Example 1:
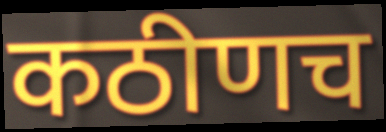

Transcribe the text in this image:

कठीणच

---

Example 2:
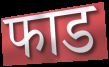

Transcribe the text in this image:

फाड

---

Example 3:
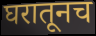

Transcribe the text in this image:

घरातूनच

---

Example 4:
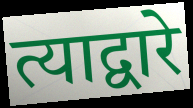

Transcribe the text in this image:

त्याद्वारे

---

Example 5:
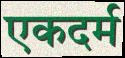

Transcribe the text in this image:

एकदर्म